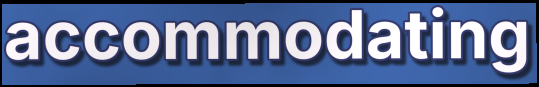
accommodating